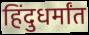
हिंदुधर्मांत